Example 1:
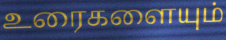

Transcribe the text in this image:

உரைகளையும்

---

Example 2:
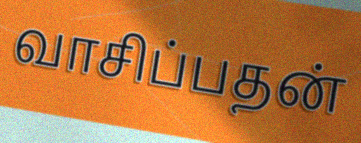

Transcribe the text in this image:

வாசிப்பதன்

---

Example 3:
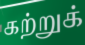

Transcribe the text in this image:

கற்றுக்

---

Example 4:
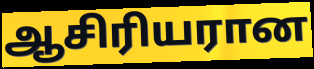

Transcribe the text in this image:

ஆசிரியரான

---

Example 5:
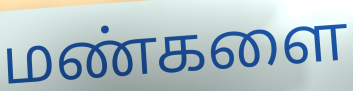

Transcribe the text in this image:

மண்களை